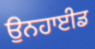
ਉਨਹਾਈਡ